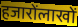
हजारोंलाखों